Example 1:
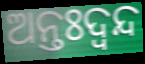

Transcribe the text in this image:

ଅନ୍ତଃଦ୍ବନ୍ଦ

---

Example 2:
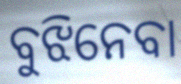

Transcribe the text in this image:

ବୁଝିନେବା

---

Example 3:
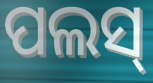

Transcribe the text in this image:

ପଲସ୍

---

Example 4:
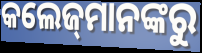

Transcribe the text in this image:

କଲେଜ୍‌ମାନଙ୍କରୁ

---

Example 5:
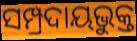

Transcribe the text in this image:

ସମ୍ପ୍ରଦାୟଭୁକ୍ତ